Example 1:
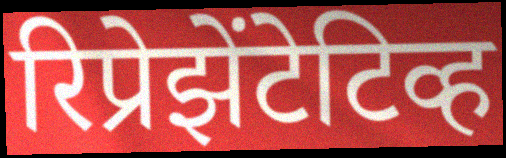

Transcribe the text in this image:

रिप्रेझेंटेटिव्ह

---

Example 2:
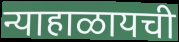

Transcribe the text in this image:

न्याहाळायची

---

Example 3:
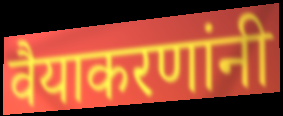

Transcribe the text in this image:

वैयाकरणांनी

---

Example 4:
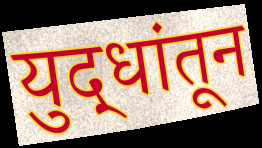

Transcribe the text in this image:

युद्धांतून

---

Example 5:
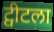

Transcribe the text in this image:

ट्वीटला